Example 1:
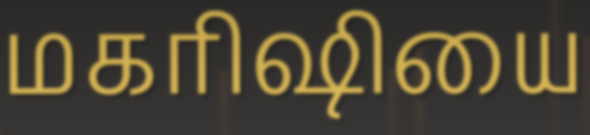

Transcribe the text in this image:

மகரிஷியை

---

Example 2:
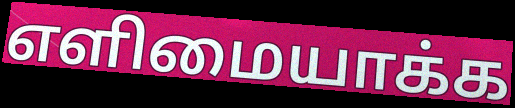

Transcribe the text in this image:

எளிமையாக்க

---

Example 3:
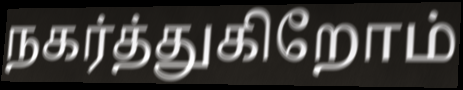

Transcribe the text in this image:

நகர்த்துகிறோம்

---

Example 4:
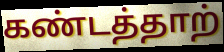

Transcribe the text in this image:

கண்டத்தாற்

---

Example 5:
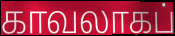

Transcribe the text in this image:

காவலாகப்